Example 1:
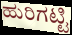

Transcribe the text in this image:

ಹುರಿಗಟ್ಟಿ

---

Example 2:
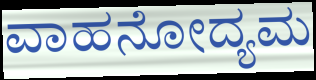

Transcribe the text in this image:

ವಾಹನೋದ್ಯಮ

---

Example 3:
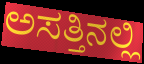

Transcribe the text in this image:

ಅಸತ್ತಿನಲ್ಲಿ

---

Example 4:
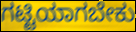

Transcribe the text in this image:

ಗಟ್ಟಿಯಾಗಬೇಕು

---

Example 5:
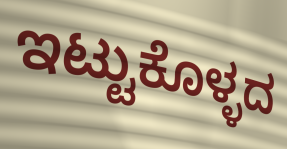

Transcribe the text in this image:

ಇಟ್ಟುಕೊಳ್ಳದ